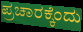
ಪ್ರಚಾರಕ್ಕೆಂದು